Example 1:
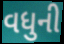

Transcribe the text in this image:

વધુની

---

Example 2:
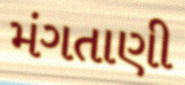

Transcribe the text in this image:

મંગતાણી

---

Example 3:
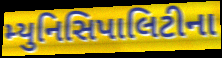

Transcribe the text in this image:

મ્યુનિસિપાલિટીના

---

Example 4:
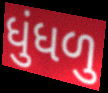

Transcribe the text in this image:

ધુંધળુ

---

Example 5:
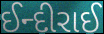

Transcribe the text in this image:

ઈન્દીરાઈ